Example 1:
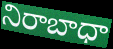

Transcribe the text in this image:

నిరాబాధా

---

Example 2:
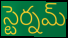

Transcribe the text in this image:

స్టెర్నమ్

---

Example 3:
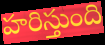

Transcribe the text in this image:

హరిస్తుంది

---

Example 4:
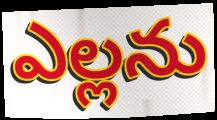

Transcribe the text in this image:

ఎల్లను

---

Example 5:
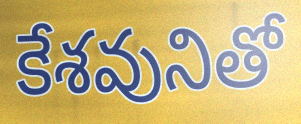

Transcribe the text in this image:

కేశవునితో